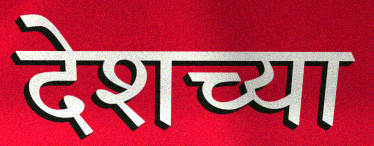
देशच्या